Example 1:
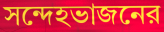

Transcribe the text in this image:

সন্দেহভাজনের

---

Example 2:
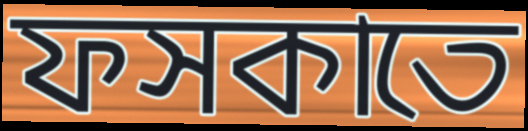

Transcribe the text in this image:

ফসকাতে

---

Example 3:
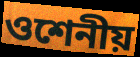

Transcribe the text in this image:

ওশেনীয়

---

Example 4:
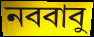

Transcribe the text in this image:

নববাবু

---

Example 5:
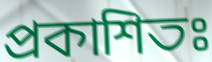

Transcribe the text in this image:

প্রকাশিতঃ